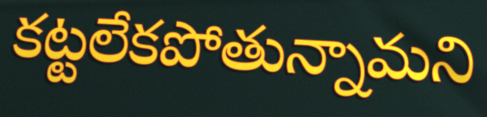
కట్టలేకపోతున్నామని